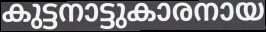
കുട്ടനാട്ടുകാരനായ